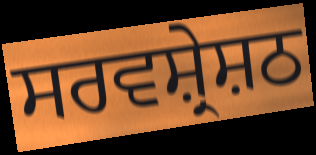
ਸਰਵਸ਼੍ਰੇਸ਼ਠ